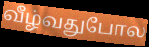
வீழ்வதுபோல